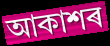
আকাশৰ